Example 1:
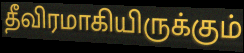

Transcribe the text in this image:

தீவிரமாகியிருக்கும்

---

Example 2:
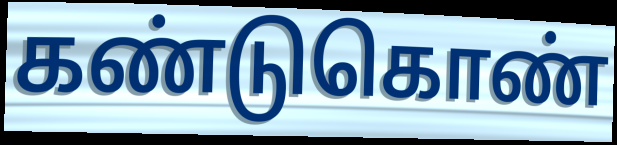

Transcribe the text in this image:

கண்டுகொண்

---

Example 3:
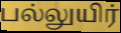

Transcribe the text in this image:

பல்லுயிர்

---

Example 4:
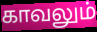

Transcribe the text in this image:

காவலும்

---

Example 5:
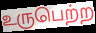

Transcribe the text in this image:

உருபெற்ற